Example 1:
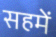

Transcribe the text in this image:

सहमें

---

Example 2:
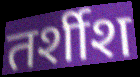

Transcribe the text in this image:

तर्शीश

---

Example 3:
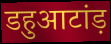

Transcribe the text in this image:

डहुआटांड़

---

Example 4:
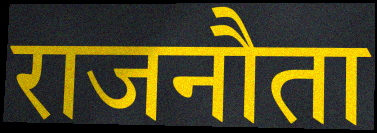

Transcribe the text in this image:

राजनौता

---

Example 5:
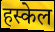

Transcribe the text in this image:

हस्केल